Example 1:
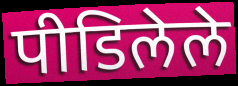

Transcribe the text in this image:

पीडिलेले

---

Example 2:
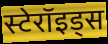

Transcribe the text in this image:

स्टेरॉइड्स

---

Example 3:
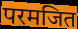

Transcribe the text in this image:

परमजित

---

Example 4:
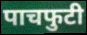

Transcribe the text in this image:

पाचफुटी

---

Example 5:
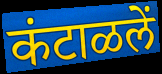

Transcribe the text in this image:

कंटाळलें